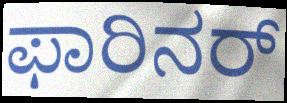
ಫಾರಿನರ್